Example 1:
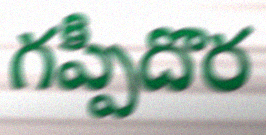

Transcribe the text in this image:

గప్పీదొర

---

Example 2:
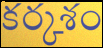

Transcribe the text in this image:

కర్కశం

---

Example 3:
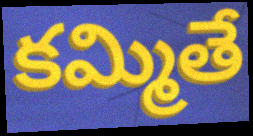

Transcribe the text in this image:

కమ్మితే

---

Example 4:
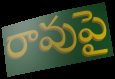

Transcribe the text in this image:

రావుపై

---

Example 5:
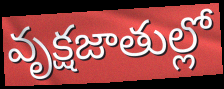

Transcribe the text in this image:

వృక్షజాతుల్లో